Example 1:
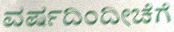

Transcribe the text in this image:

ವರ್ಷದಿಂದೀಚೆಗೆ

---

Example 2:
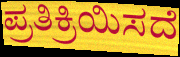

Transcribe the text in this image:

ಪ್ರತಿಕ್ರಿಯಿಸದೆ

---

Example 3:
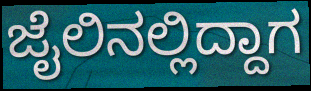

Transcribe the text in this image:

ಜೈಲಿನಲ್ಲಿದ್ದಾಗ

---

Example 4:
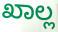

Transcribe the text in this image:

ಖಾಲ್ಲ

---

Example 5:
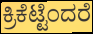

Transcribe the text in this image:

ಕ್ರಿಕೆಟ್ಟೆಂದರೆ